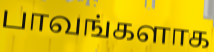
பாவங்களாக